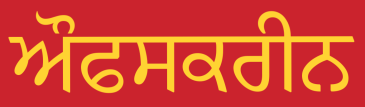
ਔਫਸਕਰੀਨ